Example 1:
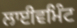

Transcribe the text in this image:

ਲਾਈਵਮਿੰਟ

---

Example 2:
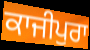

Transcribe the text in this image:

ਕਾਜੀਪੁਰਾ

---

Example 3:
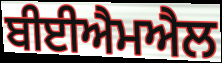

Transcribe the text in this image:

ਬੀਈਐਮਐਲ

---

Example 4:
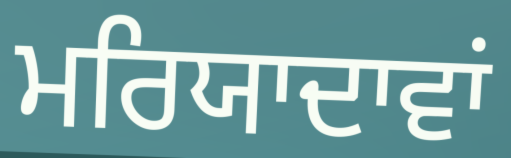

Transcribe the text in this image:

ਮਰਿਯਾਦਾਵਾਂ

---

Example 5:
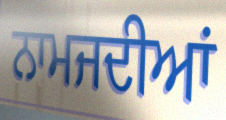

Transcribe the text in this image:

ਨਾਮਜਦੀਆਂ